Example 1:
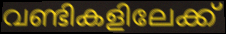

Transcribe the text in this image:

വണ്ടികളിലേക്ക്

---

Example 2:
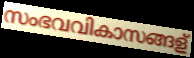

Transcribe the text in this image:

സംഭവവികാസങ്ങള്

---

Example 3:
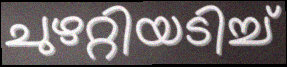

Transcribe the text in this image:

ചുഴറ്റിയടിച്ച്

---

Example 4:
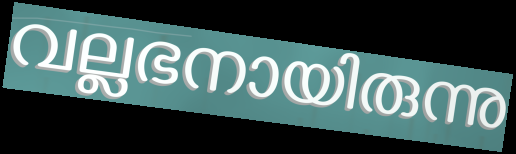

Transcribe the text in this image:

വല്ലഭനായിരുന്നു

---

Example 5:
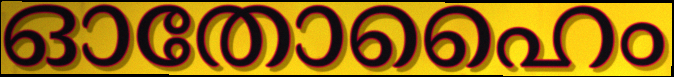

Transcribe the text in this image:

ഓതോഹൈം